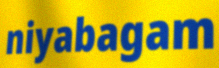
niyabagam